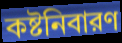
কষ্টনিবারণ